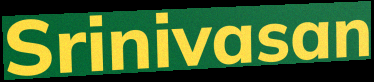
Srinivasan